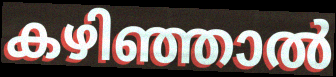
കഴിഞ്ഞാൽ